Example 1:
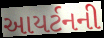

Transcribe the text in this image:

આયર્ટનની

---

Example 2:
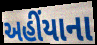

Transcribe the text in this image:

અહીંયાના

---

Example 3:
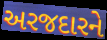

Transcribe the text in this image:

અરજદારને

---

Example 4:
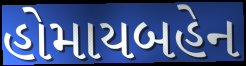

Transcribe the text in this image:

હોમાયબહેન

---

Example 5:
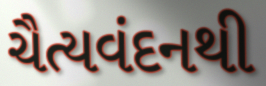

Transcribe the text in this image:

ચૈત્યવંદનથી